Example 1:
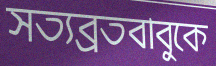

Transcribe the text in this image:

সত্যব্রতবাবুকে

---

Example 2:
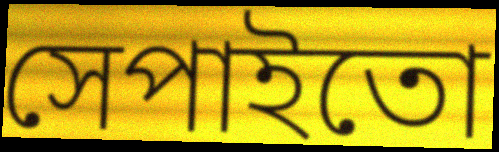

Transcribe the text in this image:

সেপাইতো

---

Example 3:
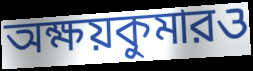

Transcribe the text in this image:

অক্ষয়কুমারও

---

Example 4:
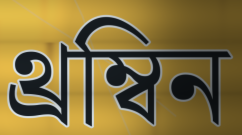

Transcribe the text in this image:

থ্রম্বিন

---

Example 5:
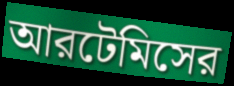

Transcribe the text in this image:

আরটেমিসের